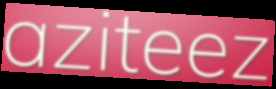
aziteez